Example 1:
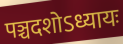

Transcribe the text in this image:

पञ्चदशोऽध्यायः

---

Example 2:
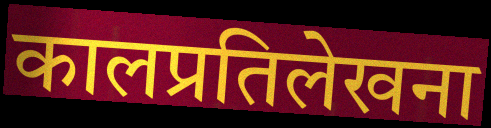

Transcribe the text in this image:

कालप्रतिलेखना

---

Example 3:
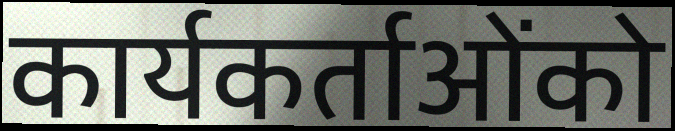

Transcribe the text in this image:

कार्यकर्ताओंको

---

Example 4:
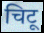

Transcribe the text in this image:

चिटू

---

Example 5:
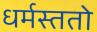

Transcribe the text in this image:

धर्मस्ततो